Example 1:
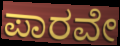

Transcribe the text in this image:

ಪಾರವೇ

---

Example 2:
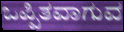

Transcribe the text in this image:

ಒಪ್ಪಿತವಾಗುವ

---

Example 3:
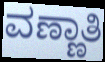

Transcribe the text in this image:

ವಣ್ಣಾತಿ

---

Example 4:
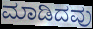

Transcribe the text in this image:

ಮಾಡಿದವು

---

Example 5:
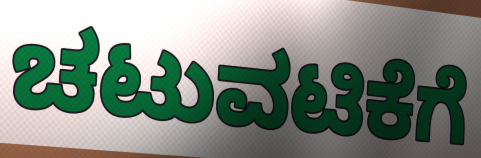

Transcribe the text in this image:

ಚಟುವಟಿಕೆಗೆ